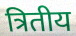
त्रितीय